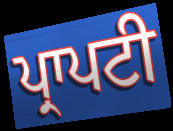
ਪ੍ਰਾਪਟੀ